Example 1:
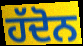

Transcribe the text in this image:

ਹੱਦੋਨ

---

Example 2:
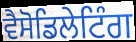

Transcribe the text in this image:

ਵੈਸੋਡਿਲੇਟਿੰਗ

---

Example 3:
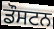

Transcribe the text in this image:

ਡੌਸਟਨ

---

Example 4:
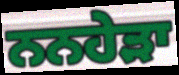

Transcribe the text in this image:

ਨਨਹੇੜਾ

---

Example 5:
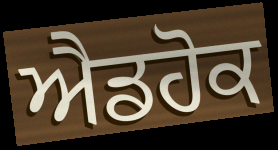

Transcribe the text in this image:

ਐਡਹੋਕ